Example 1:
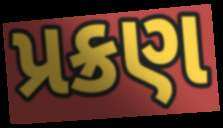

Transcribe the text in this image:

પ્રક્રણ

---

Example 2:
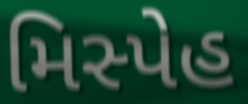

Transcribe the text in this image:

મિસ્પેહ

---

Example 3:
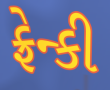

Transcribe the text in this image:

ફ્રેન્કી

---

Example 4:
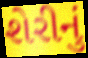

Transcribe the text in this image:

શેરીનું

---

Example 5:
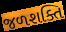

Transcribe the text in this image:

જળશક્તિ